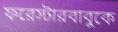
ফরেস্টারবাবুকে